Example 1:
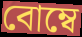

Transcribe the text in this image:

বোম্বে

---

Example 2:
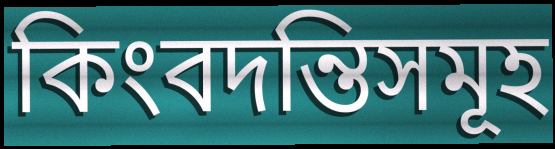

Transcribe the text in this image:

কিংবদন্তিসমূহ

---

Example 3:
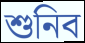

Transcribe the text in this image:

শুনিব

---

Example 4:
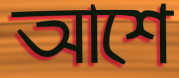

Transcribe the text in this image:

আশে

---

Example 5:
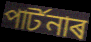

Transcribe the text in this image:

পাৰ্টনাৰ